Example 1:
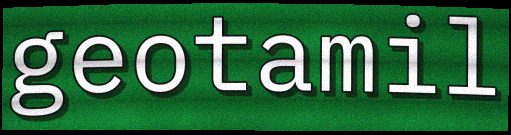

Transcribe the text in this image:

geotamil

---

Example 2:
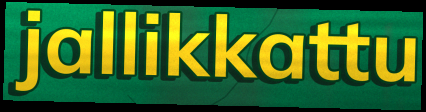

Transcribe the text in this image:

jallikkattu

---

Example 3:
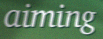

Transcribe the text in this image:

aiming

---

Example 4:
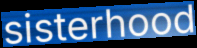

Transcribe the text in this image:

sisterhood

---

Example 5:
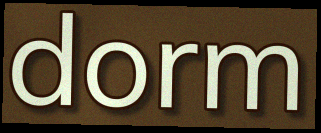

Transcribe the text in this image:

dorm